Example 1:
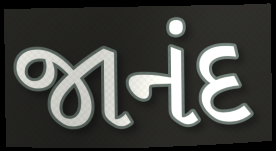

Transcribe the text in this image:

જાનંદ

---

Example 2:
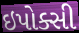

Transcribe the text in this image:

ઇપોક્સી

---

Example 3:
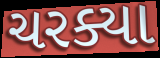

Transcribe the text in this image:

ચરક્યા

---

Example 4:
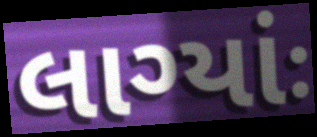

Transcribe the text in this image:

લાગ્યાંઃ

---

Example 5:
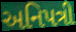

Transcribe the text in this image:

અનિપત્રી